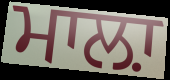
ਮਾਲ਼ਾ